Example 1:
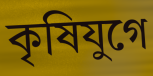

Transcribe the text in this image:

কৃষিযুগে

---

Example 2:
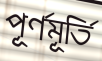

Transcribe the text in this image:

পূর্ণমূর্তি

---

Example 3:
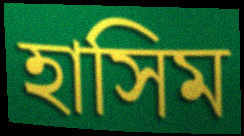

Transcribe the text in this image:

হাসিম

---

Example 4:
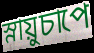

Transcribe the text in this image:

স্নায়ুচাপে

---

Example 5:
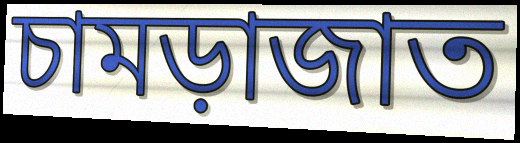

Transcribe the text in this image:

চামড়াজাত